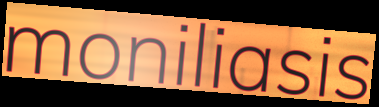
moniliasis